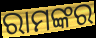
ରାମଙ୍କର